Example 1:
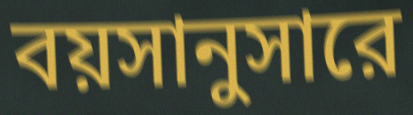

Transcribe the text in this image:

বয়সানুসারে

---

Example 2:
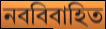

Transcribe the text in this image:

নববিবাহিত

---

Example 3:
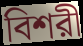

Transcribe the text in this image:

বিশরী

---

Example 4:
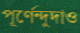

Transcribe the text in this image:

পূর্ণেন্দুদাও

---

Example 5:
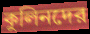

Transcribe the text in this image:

কুলিনদের